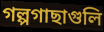
গল্পগাছাগুলি